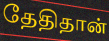
தேதிதான்